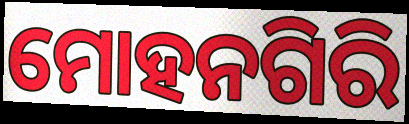
ମୋହନଗିରି